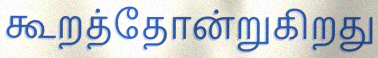
கூறத்தோன்றுகிறது